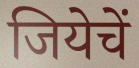
जियेचें